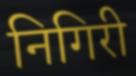
निगिरी